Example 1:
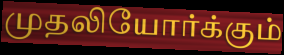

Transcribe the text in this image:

முதலியோர்க்கும்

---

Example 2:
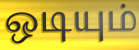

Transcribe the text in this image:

ஒடியும்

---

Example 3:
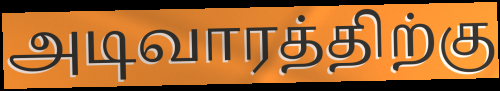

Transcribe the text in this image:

அடிவாரத்திற்கு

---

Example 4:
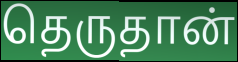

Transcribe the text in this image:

தெருதான்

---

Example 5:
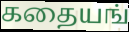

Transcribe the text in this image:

கதையங்